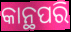
କାନ୍ଥପରି